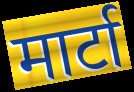
मार्टा